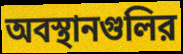
অবস্থানগুলির